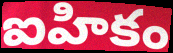
ఐహికం